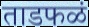
ताडफळं